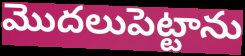
మొదలుపెట్టాను